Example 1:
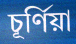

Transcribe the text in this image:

চূর্ণিয়া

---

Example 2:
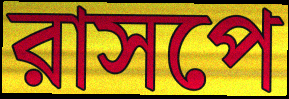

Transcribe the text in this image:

রাসপে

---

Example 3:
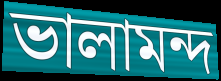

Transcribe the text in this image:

ভালামন্দ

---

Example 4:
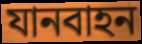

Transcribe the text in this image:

যানবাহন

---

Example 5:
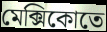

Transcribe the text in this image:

মেক্সিকোতে